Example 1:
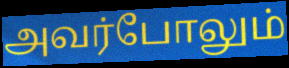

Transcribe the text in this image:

அவர்போலும்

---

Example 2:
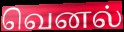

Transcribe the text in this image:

வெனல்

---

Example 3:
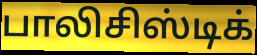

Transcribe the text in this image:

பாலிசிஸ்டிக்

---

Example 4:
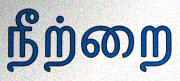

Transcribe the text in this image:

நீற்றை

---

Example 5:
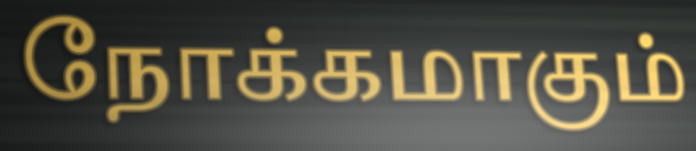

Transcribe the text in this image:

நோக்கமாகும்